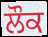
ਲੌਕ